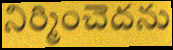
నిర్మించెదను